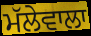
ਮੱਲੇਵਾਲਾ